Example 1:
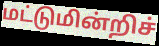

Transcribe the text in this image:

மட்டுமின்றிச்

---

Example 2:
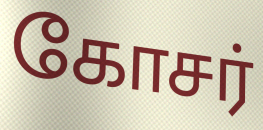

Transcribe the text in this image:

கோசர்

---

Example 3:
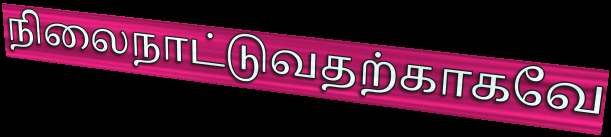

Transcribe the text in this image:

நிலைநாட்டுவதற்காகவே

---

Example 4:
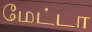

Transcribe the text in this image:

மேட்டா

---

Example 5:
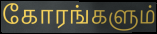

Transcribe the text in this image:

கோரங்களும்